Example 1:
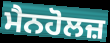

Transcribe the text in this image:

ਮੈਨਹੋਲਜ਼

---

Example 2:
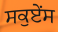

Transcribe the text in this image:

ਸਕੁਏਂਸ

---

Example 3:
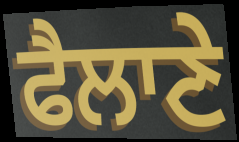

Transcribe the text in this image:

ਫੈਲਾਣੇ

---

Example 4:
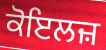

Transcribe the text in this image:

ਕੋਇਲਜ਼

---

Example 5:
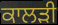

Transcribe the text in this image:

ਕਾਲੜੀ